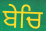
ਬੇਚਿ